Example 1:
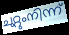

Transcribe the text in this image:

ചുറ്റുംനിന്ന്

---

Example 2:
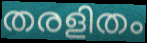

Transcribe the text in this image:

തരളിതം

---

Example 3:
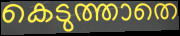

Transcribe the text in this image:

കെടുത്താതെ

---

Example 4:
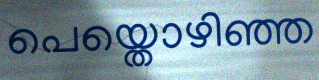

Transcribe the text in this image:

പെയ്തൊഴിഞ്ഞ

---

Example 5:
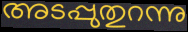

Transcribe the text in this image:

അടപ്പുതുറന്നു